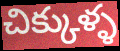
చిక్కుళ్ళ